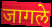
जागले